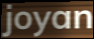
joyan